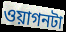
ওয়াগনটা